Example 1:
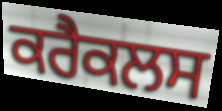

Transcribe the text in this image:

ਕਰੈਕਲਸ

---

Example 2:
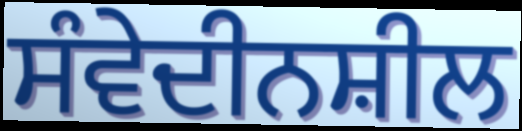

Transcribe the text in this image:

ਸੰਵੇਦੀਨਸ਼ੀਲ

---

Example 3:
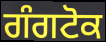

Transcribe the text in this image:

ਗੰਗਟੋਕ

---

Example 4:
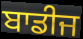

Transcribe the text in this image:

ਬਾਡੀਜ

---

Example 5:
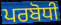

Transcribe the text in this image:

ਪਰਬੋਧੀ